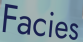
Facies